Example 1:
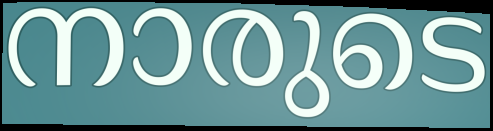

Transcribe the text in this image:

നാരുടെ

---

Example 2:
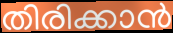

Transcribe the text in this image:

തിരിക്കാൻ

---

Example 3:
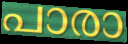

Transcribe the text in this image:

പാരാ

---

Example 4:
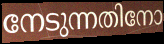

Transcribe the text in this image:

നേടുന്നതിനോ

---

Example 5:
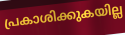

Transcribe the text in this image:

പ്രകാശിക്കുകയില്ല